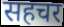
सहचर